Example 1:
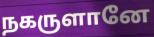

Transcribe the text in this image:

நகருளானே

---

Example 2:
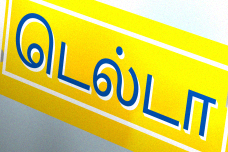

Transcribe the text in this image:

டெல்டா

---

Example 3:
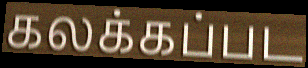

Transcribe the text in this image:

கலக்கப்பட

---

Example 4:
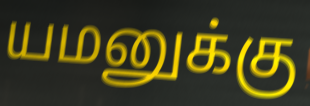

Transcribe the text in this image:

யமனுக்கு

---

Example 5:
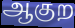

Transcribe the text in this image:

ஆகுற